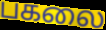
பகலை